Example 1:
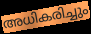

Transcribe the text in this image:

അധികരിച്ചും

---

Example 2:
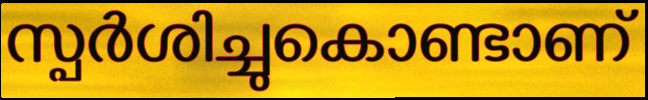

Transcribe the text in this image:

സ്പർശിച്ചുകൊണ്ടാണ്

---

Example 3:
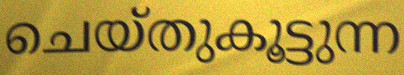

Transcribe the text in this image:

ചെയ്തുകൂട്ടുന്ന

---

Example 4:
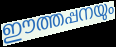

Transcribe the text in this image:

ഈത്തപ്പനയും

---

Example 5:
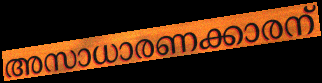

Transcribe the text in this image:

അസാധാരണക്കാരന്